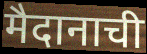
मैदानाची